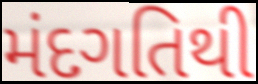
મંદગતિથી